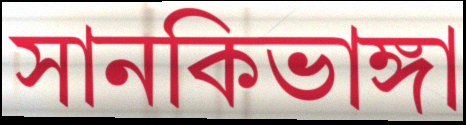
সানকিভাঙ্গা